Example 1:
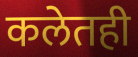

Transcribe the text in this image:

कलेतही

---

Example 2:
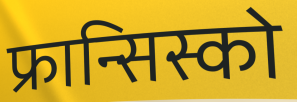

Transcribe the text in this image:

फ्रान्सिस्को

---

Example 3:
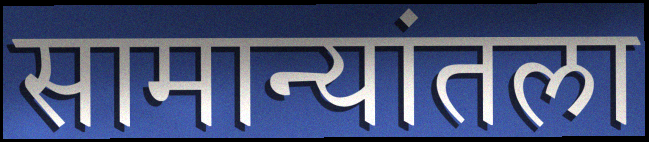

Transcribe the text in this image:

सामान्यांतला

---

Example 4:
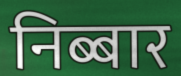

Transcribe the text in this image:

निब्बार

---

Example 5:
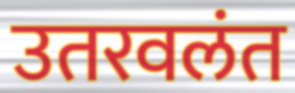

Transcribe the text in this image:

उतरवलंत